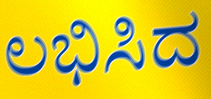
ಲಭಿಸಿದ